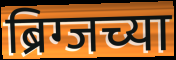
ब्रिग्जच्या